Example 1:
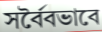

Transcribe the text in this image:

সর্বৈবভাবে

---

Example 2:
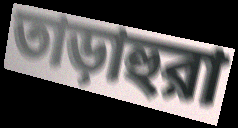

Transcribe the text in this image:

তাড়াহুরা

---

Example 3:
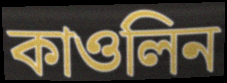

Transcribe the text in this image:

কাওলিন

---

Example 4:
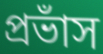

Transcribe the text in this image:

প্রভাঁস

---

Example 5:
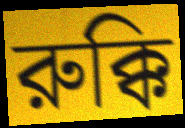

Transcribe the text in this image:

রুক্কি